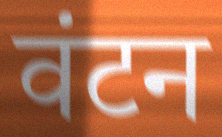
वंटन